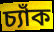
চ্যাঁক